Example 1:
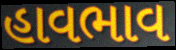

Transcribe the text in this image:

હાવભાવ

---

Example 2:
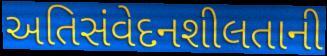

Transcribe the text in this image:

અતિસંવેદનશીલતાની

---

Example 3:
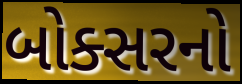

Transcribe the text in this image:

બોક્સરનો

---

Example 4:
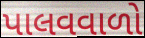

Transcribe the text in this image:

પાલવવાળો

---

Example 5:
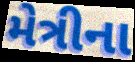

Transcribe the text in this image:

મેત્રીના